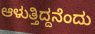
ಆಳುತ್ತಿದ್ದನೆಂದು